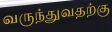
வருந்துவதற்கு